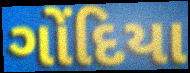
ગોંદિયા